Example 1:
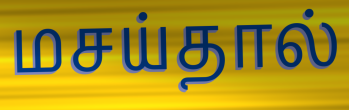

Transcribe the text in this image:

மசய்தால்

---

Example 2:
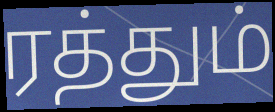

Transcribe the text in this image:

ரத்தும்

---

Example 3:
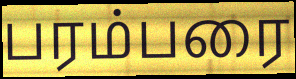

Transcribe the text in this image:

பரம்பரை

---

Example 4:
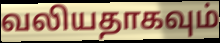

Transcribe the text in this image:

வலியதாகவும்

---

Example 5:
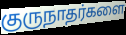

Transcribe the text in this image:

குருநாதர்களை